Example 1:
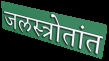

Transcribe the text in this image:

जलस्त्रोतांत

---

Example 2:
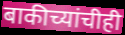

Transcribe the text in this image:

बाकीच्यांचीही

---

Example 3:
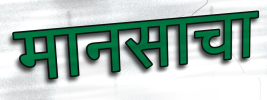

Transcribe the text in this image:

मानसाचा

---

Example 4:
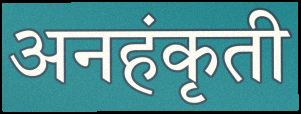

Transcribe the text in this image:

अनहंकृती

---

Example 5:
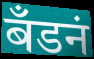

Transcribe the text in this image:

बँडनं